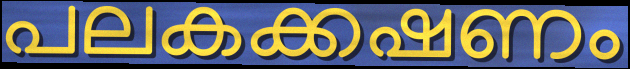
പലകക്കഷണം